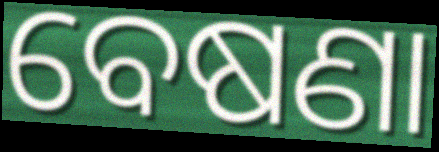
ବେଷଣା